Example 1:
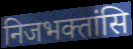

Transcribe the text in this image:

निजभक्तांसि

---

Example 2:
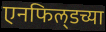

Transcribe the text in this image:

एनफिल्डच्या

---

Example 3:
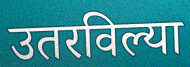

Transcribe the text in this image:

उतरविल्या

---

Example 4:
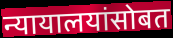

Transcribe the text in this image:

न्यायालयांसोबत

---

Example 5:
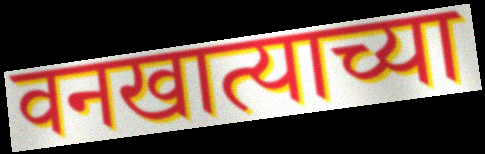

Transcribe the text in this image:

वनखात्याच्या